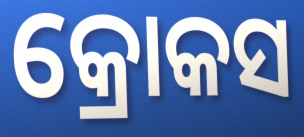
କ୍ରୋକସ